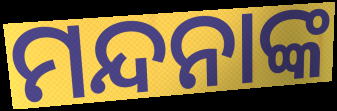
ମନ୍ଦନାଙ୍କ